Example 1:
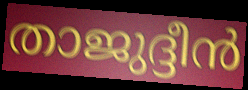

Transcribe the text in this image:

താജുദ്ദീൻ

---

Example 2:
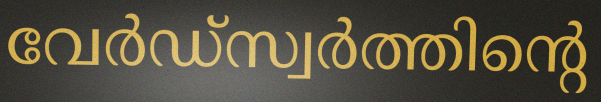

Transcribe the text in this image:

വേർഡ്സ്വർത്തിന്റെ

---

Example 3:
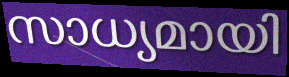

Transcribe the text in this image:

സാധ്യമായി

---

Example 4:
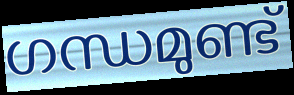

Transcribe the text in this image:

ഗന്ധമുണ്ട്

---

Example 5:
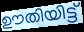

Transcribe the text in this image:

ഊതിയിട്ട്